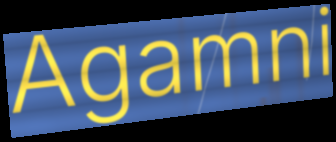
Agamni